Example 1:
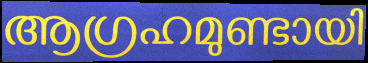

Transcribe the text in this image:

ആഗ്രഹമുണ്ടായി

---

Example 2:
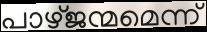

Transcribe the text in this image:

പാഴ്ജന്മമെന്ന്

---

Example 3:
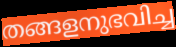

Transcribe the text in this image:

തങ്ങളനുഭവിച്ച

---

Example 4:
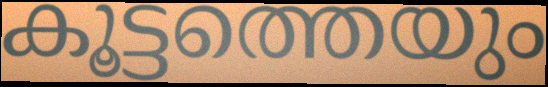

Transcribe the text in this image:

കൂട്ടത്തെയും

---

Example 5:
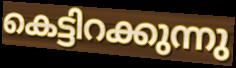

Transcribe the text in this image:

കെട്ടിറക്കുന്നു